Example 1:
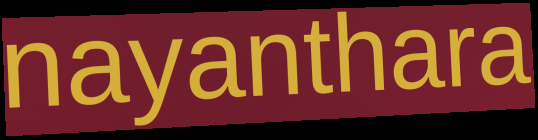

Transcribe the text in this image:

nayanthara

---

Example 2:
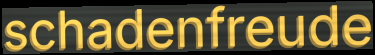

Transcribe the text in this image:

schadenfreude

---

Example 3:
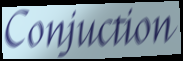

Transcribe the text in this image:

Conjuction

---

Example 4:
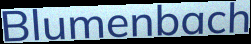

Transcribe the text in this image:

Blumenbach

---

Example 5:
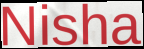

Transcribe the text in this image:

Nisha